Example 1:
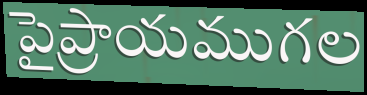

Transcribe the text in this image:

పైప్రాయముగల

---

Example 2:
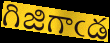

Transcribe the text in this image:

గిజిగాఁడ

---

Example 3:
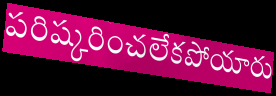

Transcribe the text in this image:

పరిష్కరించలేకపోయారు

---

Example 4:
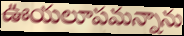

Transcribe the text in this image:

ఊయలూపమన్నాను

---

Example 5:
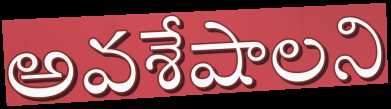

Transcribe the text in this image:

అవశేషాలని